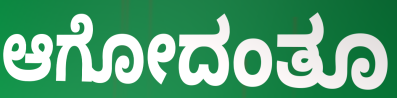
ಆಗೋದಂತೂ